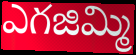
ఎగజిమ్మి